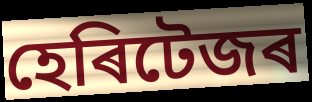
হেৰিটেজৰ